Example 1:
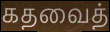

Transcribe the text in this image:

கதவைத்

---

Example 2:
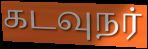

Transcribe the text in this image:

கடவுநர்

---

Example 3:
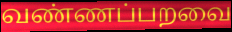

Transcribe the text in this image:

வண்ணப்பறவை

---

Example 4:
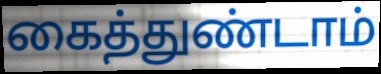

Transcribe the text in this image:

கைத்துண்டாம்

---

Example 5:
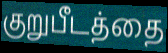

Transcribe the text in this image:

குறுபீடத்தை